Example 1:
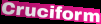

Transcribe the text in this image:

Cruciform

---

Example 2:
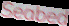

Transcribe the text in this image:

Seabed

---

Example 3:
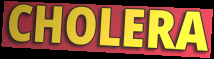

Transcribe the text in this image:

CHOLERA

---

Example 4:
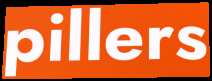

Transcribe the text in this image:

pillers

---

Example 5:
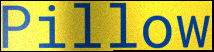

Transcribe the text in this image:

Pillow